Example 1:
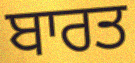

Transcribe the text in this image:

ਬਾਰਤ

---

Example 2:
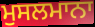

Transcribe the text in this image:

ਮੁਸਲਮਾਨਾ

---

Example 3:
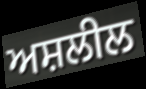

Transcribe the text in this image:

ਅਸ਼ਲੀਲ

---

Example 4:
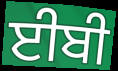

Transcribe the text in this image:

ਈਬੀ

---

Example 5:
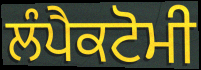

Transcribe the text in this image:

ਲੰਪੈਕਟੋਮੀ